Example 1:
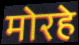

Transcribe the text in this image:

मोरहे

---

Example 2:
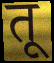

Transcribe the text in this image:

तू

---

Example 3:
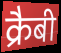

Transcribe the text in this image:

क्रैबी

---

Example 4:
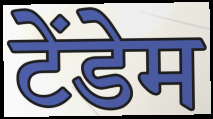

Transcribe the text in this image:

टेंडेम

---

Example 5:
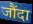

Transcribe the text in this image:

जौंदा